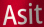
Asit